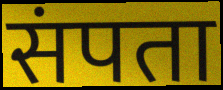
संपता